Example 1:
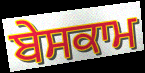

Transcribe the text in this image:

ਬੇਸਕਾਮ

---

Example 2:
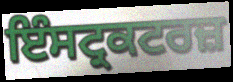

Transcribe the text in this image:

ਇੰਸਟ੍ਰਕਟਰਜ਼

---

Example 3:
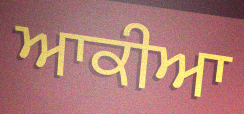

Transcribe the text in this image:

ਆਕੀਆ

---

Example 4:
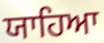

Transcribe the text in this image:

ਯਾਹਿਆ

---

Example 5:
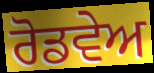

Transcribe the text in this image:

ਰੋਡਵੇਅ